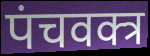
पंचवक्त्र